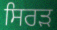
ਸਿਰੜ